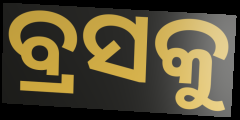
ବ୍ରସକୁ